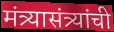
मंत्र्यासंत्र्यांची